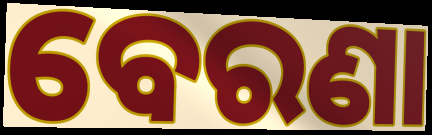
ବେରଣା